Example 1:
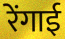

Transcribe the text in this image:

रेंगाई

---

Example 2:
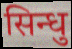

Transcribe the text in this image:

सिन्‍धु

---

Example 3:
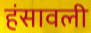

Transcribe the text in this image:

हंसावली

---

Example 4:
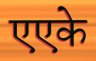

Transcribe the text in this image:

एएके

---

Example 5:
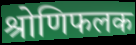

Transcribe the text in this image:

श्रोणिफलक